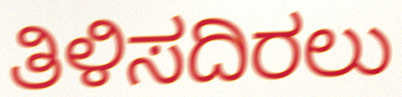
ತಿಳಿಸದಿರಲು